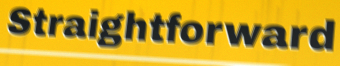
Straightforward